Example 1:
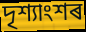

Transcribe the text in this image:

দৃশ্যাংশৰ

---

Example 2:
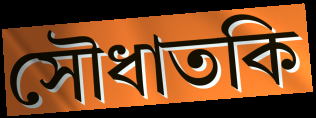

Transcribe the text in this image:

সৌধাতকি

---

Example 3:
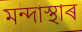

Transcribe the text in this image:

মন্দাস্থাৰ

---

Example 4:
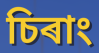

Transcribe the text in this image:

চিৰাং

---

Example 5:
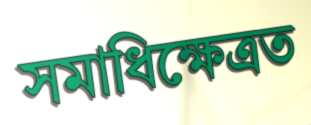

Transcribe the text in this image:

সমাধিক্ষেত্ৰত